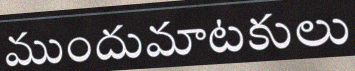
ముందుమాటకులు